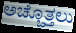
ಅಚ್ಚೊತ್ತಲು